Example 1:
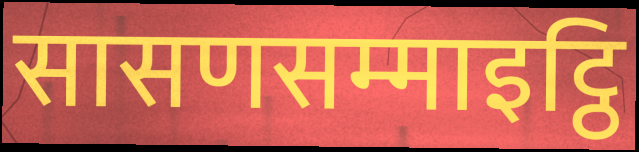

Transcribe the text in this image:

सासणसम्माइट्ठि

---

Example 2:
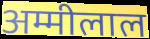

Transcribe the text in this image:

अम्मीलाल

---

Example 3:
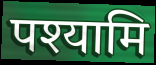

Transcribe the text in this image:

पश्यामि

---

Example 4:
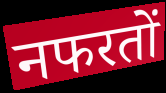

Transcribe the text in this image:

नफरतों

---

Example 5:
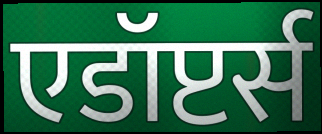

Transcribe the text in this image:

एडॉप्टर्स